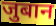
जुबान